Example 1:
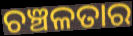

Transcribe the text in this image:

ଚଞ୍ଚଳତାର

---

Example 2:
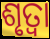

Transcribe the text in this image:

ଶୃତ୍ୱା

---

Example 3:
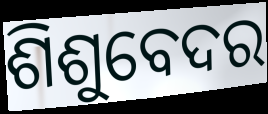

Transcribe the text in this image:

ଶିଶୁବେଦର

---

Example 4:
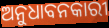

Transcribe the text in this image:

ଅନୁଧାବନକାରୀ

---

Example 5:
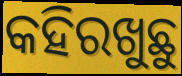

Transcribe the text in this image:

କହିରଖୁଛୁ